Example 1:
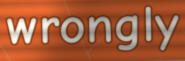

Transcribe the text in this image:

wrongly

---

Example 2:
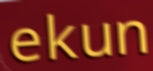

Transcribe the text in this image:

ekun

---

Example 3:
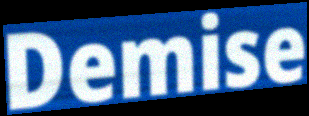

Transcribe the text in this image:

Demise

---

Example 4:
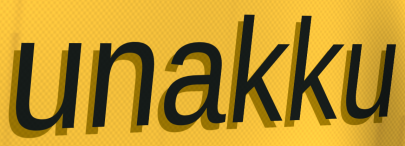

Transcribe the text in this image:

unakku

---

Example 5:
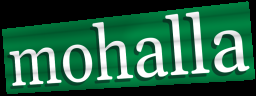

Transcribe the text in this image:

mohalla